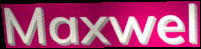
Maxwel